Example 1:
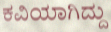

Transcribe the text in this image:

ಕವಿಯಾಗಿದ್ದು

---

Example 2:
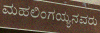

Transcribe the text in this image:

ಮಹಲಿಂಗಯ್ಯನವರು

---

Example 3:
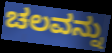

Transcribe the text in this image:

ಚಲವನ್ನು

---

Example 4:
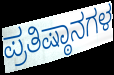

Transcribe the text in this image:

ಪ್ರತಿಷ್ಠಾನಗಳ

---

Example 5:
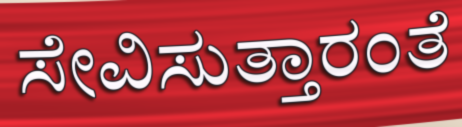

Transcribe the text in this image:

ಸೇವಿಸುತ್ತಾರಂತೆ